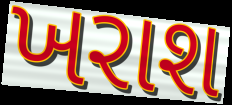
ખરાશ